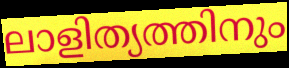
ലാളിത്യത്തിനും